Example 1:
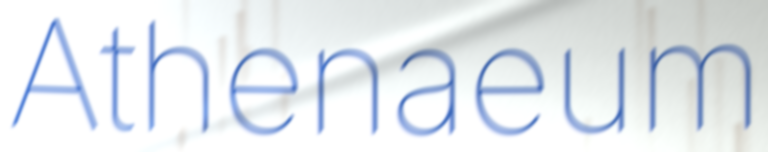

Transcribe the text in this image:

Athenaeum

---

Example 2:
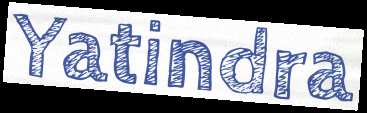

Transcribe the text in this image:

Yatindra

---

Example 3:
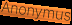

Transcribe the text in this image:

Anonymus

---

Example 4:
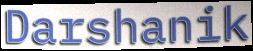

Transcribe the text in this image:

Darshanik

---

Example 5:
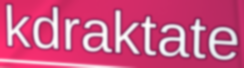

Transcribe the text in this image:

kdraktate